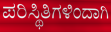
ಪರಿಸ್ಥಿತಿಗಳಿಂದಾಗಿ